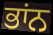
ਭਾਂਨ